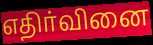
எதிர்வினை